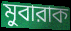
মুবারাক